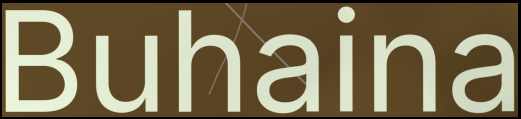
Buhaina